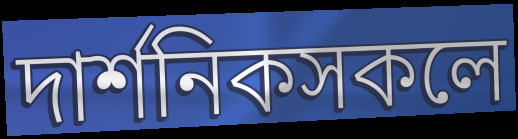
দাৰ্শনিকসকলে